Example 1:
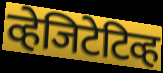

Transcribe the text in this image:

व्हेजिटेटिव्ह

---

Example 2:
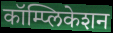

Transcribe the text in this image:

कॉम्प्लिकेशन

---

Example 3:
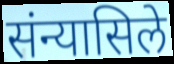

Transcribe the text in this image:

संन्यासिले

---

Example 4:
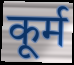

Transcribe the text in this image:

कूर्म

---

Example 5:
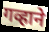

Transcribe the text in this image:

गव्हाने